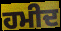
ਹਮੀਦ